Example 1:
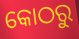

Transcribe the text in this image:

କୋଠରୁ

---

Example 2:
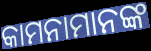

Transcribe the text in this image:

କାମନାମାନଙ୍କ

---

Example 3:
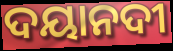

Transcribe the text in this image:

ଦୟାନଦୀ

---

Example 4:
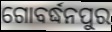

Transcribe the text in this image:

ଗୋବର୍ଦ୍ଧନପୁର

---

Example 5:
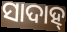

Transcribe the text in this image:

ସାଦାହ୍